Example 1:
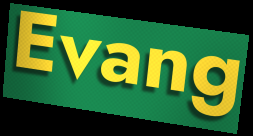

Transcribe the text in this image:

Evang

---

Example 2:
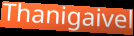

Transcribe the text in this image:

Thanigaivel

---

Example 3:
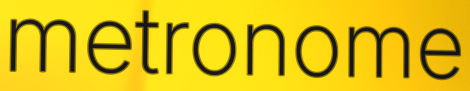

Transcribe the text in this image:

metronome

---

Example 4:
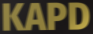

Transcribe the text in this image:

KAPD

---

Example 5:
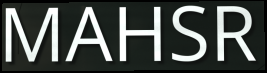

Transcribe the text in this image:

MAHSR